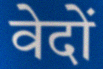
वेदों